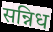
सन्निध